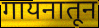
गायनातून